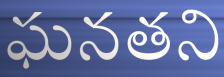
ఘనతని